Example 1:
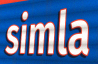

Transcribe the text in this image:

simla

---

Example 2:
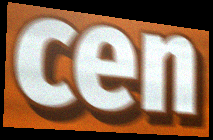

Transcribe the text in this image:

cen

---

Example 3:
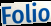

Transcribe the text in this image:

Folio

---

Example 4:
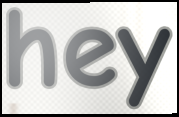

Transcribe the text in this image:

hey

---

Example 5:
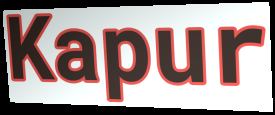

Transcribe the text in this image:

Kapur